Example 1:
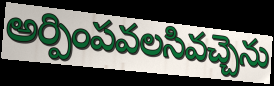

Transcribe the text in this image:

అర్పింపవలసివచ్చెను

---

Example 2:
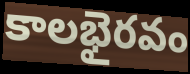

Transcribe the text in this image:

కాలభైరవం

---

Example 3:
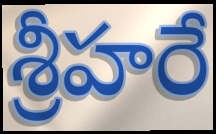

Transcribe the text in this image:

శ్రీహరే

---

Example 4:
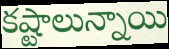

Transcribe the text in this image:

కష్టాలున్నాయి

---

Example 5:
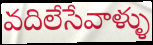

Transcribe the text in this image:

వదిలేసేవాళ్ళు